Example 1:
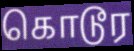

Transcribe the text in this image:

கொடூர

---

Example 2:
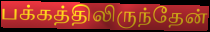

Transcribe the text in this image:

பக்கத்திலிருந்தேன்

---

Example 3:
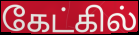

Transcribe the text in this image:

கேட்கில்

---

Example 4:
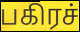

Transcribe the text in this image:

பகிரச்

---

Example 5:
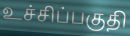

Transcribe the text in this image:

உச்சிப்பகுதி